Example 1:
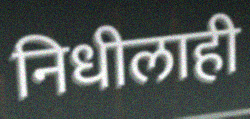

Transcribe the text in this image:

निधीलाही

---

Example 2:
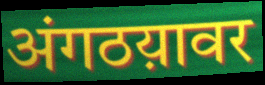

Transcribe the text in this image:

अंगठय़ावर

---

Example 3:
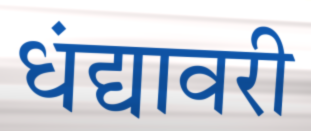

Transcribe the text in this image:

धंद्यावरी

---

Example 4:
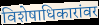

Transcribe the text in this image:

विशेषाधिकारांवर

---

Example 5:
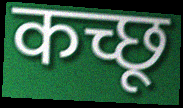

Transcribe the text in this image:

कच्छू